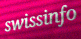
swissinfo